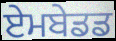
ਏਮਬੇਡਡ